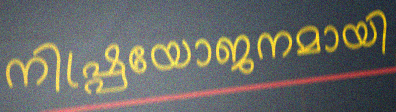
നിഷ്പ്രയോജനമായി